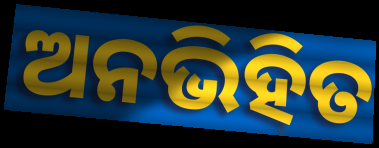
ଅନଭିହିତ